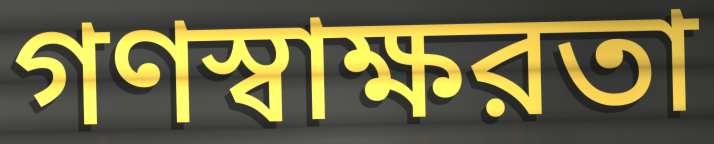
গণস্বাক্ষরতা